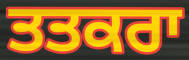
ਤਤਕਰਾ